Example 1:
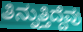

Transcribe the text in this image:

ತಿನ್ನುತ್ತಿದ್ದೆವು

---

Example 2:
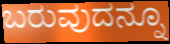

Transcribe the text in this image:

ಬರುವುದನ್ನೂ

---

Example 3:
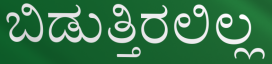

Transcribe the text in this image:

ಬಿಡುತ್ತಿರಲಿಲ್ಲ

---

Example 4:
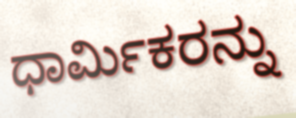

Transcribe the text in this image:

ಧಾರ್ಮಿಕರನ್ನು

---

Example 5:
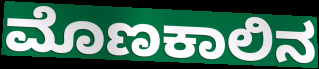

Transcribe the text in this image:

ಮೊಣಕಾಲಿನ